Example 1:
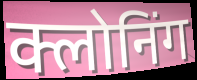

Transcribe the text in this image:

क्लोनिंग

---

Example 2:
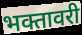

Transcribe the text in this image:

भक्तावरी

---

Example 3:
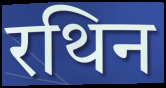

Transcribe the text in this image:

रथिन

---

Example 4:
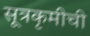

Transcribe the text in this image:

सूत्रकृमीची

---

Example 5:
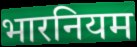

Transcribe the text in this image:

भारनियम